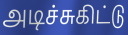
அடிச்சுகிட்டு